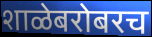
शाळेबरोबरच